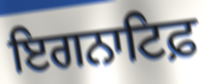
ਇਗਨਾਟਿਫ਼